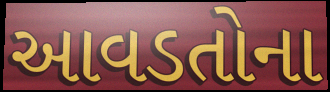
આવડતોના